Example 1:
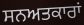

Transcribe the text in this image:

ਸਨਅਤਕਾਰਾਂ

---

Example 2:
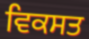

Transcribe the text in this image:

ਵਿਕਸਤ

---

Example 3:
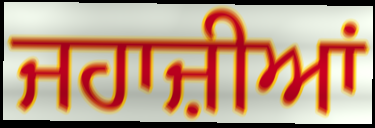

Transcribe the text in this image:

ਜਹਾਜ਼ੀਆਂ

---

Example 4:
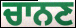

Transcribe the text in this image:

ਚਾਨਣ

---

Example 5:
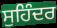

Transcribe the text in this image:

ਸੁਹਿੰਦਰ